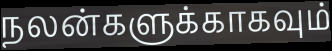
நலன்களுக்காகவும்